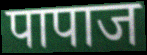
पापाज